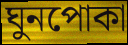
ঘুনপোকা